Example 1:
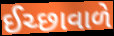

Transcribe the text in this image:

ઈચ્છાવાળે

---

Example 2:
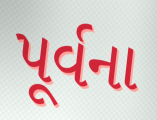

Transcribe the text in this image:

પૂર્વના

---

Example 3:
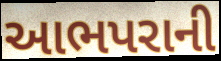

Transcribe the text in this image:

આભપરાની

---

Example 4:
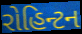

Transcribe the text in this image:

રોહિન્ટન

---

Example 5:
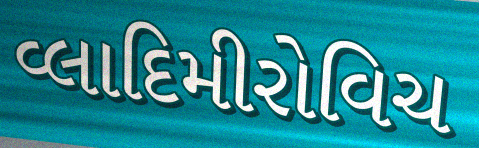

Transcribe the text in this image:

વ્લાદિમીરોવિચ